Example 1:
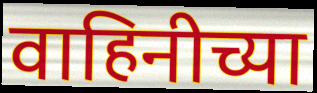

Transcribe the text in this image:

वाहिनीच्या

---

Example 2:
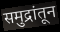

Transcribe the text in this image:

समुद्रांतून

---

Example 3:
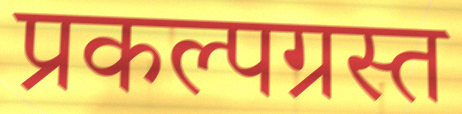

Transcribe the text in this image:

प्रकल्पग्रस्त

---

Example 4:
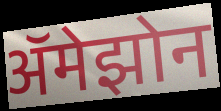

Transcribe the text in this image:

ॲमेझोन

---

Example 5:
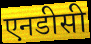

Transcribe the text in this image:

एनडीसी